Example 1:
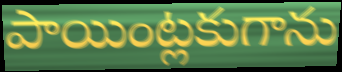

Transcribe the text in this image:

పాయింట్లకుగాను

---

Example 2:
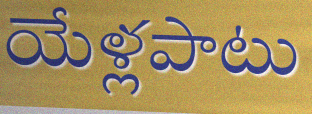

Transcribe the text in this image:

యేళ్లపాటు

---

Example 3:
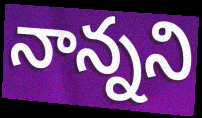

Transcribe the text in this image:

నాన్నని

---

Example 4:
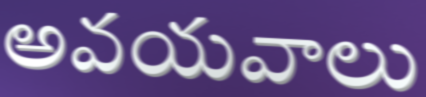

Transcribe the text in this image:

అవయవాలు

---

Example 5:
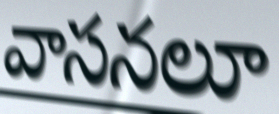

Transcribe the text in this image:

వాసనలూ